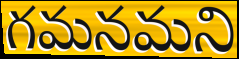
గమనమని